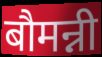
बौमन्नी